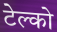
टेल्को